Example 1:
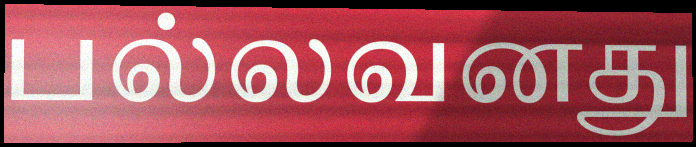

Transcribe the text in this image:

பல்லவனது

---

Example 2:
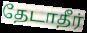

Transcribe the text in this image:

தேடாதீர்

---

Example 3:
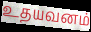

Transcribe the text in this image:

உதயவனம்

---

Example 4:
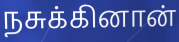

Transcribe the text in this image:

நசுக்கினான்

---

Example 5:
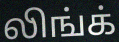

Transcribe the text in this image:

லிங்க்